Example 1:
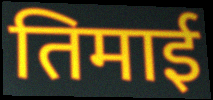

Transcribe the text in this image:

तिमाई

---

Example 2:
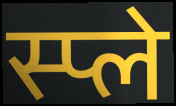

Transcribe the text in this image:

स्प्ले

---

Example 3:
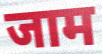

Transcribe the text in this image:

जाम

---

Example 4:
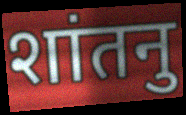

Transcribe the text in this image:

शांतनु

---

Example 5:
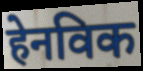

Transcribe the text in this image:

हेनविक